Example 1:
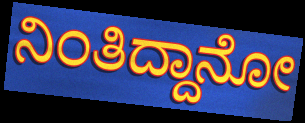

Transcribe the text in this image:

ನಿಂತಿದ್ದಾನೋ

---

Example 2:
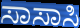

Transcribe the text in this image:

ಸಾಸಾಸಿ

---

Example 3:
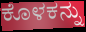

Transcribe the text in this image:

ಕೊಳಕನ್ನು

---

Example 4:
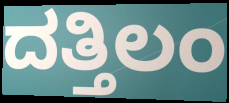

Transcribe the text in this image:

ದತ್ತಿಲಂ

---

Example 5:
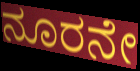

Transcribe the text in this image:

ನೂರನೇ